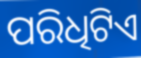
ପରିଧିଟିଏ